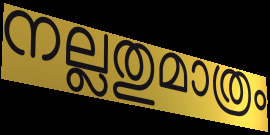
നല്ലതുമാത്രം